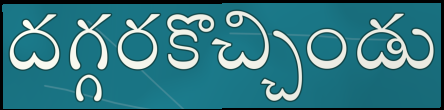
దగ్గరకొచ్చిండు